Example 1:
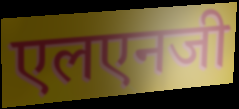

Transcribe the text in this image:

एलएनजी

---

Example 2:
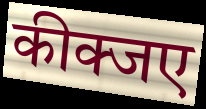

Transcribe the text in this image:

कीक्जए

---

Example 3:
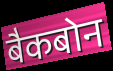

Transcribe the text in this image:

बैकबोन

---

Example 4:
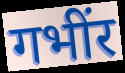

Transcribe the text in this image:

गभींर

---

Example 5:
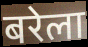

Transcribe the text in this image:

बरेला